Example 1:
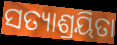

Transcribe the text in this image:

ସତ୍ୟାଶ୍ରୟିତା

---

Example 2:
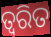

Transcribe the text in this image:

ତ୍ବରିତ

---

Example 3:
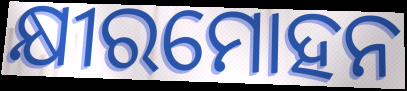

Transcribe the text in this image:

କ୍ଷୀରମୋହନ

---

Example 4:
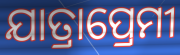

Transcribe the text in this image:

ଯାତ୍ରାପ୍ରେମୀ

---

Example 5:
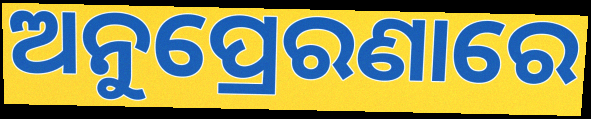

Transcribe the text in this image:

ଅନୁପ୍ରେରଣାରେ